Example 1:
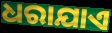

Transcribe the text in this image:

ଧରାଯାଏ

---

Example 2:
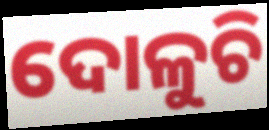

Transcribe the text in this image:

ଦୋଳୁଚି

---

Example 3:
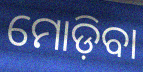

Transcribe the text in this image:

ମୋଡ଼ିବା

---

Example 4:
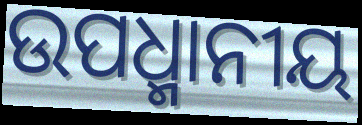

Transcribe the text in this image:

ଉପଧ୍ମାନୀୟ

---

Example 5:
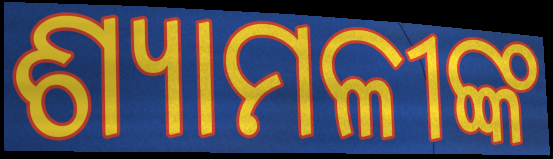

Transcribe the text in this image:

ଶ୍ୟାମଳୀଙ୍କ